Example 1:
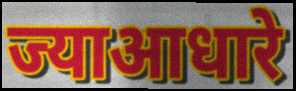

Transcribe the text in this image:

ज्याआधारे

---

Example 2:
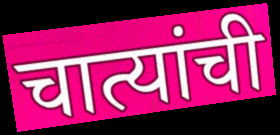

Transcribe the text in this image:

चात्यांची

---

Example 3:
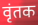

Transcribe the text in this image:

वृंतक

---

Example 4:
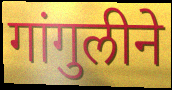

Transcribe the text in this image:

गांगुलीने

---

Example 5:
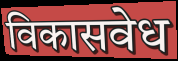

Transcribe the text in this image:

विकासवेध